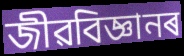
জীৱবিজ্ঞানৰ